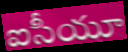
ఐసీయూ